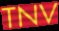
TNV